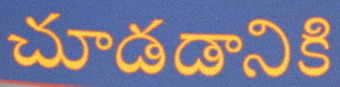
చూడడానికి